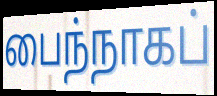
பைந்நாகப்